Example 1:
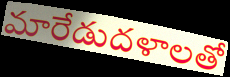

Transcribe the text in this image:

మారేడుదళాలతో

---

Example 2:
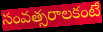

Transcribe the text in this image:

సంవత్సరాలకంటే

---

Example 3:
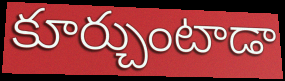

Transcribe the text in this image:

కూర్చుంటాడా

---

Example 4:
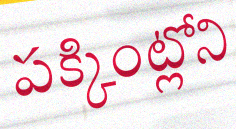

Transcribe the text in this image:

పక్కింట్లోని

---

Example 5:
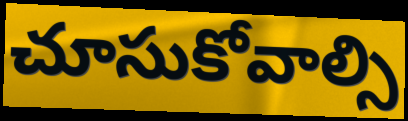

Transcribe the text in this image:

చూసుకోవాల్సి